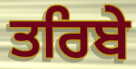
ਤਰਿਬੇ